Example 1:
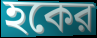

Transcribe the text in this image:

হকের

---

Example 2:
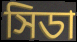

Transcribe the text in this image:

সিডা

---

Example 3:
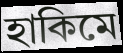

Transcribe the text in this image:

হাকিমে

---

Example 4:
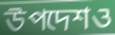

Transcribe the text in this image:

উপদেশও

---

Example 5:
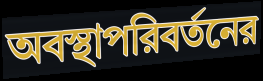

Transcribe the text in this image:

অবস্থাপরিবর্তনের